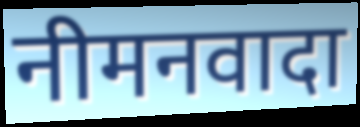
नीमनवादा